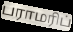
பராமரிப்